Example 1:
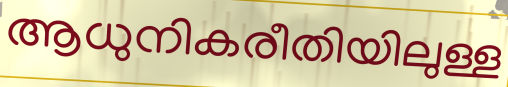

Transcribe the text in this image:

ആധുനികരീതിയിലുള്ള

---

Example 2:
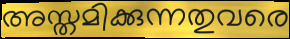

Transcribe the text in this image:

അസ്തമിക്കുന്നതുവരെ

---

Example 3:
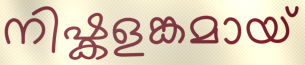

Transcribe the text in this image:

നിഷ്കളങ്കമായ്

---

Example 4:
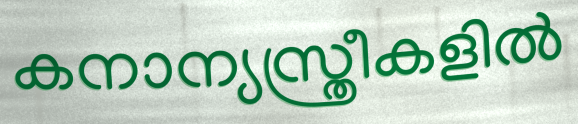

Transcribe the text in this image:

കനാന്യസ്ത്രീകളിൽ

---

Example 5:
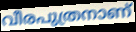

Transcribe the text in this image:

വീരപുത്രനാണ്